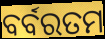
ବର୍ବରତମ